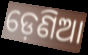
ଡ଼େଣିଆ